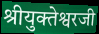
श्रीयुक्तेश्वरजी